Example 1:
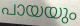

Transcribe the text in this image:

പായയും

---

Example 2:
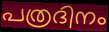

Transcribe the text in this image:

പത്രദിനം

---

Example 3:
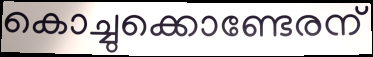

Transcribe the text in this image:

കൊച്ചുക്കൊണ്ടേരന്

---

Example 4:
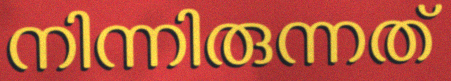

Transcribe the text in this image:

നിന്നിരുന്നത്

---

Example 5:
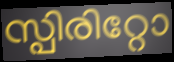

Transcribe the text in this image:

സ്പിരിറ്റോ